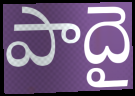
పాదై